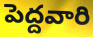
పెద్దవారి